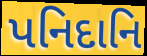
પનિદાનિ